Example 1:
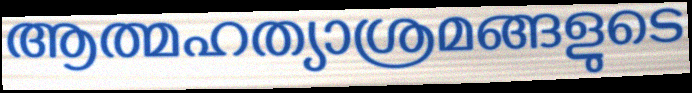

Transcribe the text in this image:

ആത്മഹത്യാശ്രമങ്ങളുടെ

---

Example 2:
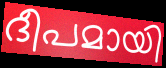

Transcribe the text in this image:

ദീപമായി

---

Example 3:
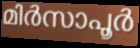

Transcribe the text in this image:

മിർസാപൂർ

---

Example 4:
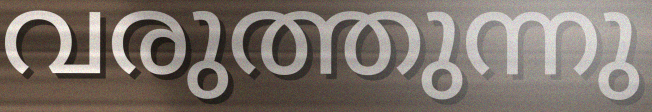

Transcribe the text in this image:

വരുത്തുന്നു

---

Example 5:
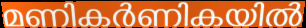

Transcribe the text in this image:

മണികർണികയിൽ